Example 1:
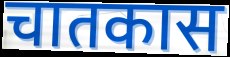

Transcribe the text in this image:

चातकास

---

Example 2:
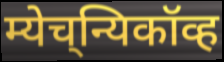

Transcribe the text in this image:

म्येच्‌न्यिकॉव्ह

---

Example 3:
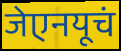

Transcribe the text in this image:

जेएनयूचं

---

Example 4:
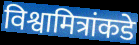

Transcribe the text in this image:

विश्वामित्रांकडे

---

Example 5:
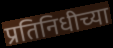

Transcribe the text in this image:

प्रतिनिधीच्या